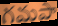
గమపా